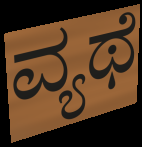
ವ್ಯಥೆ